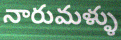
నారుమళ్ళు